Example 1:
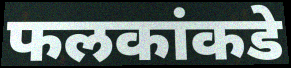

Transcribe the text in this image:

फलकांकडे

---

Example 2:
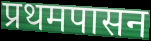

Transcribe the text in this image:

प्रथमपासन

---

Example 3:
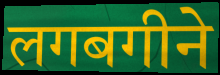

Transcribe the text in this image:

लगबगीने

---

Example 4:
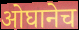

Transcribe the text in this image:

ओघानेच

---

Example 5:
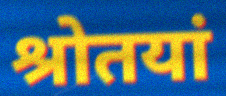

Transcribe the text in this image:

श्रोतयां